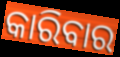
କାରିବାର